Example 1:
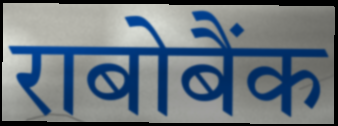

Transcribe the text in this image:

राबोबैंक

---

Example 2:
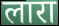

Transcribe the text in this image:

लारा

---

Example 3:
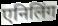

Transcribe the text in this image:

एनिलिंग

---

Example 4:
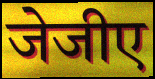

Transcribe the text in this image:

जेजीए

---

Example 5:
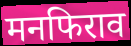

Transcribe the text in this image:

मनफिराव